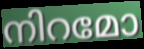
നിറമോ